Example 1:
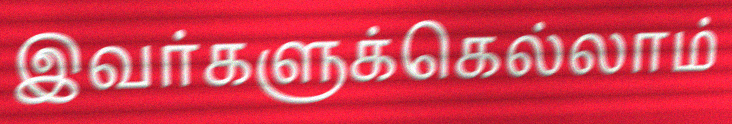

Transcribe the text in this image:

இவர்களுக்கெல்லாம்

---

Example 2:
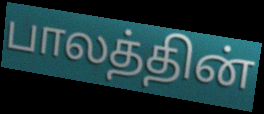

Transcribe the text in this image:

பாலத்தின்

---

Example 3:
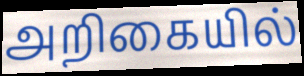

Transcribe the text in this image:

அறிகையில்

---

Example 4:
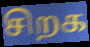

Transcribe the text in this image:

சிறக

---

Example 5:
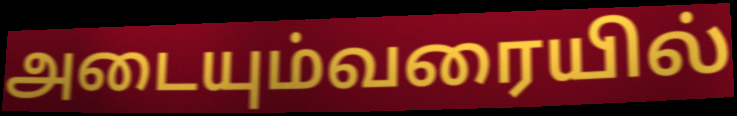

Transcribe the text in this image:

அடையும்வரையில்